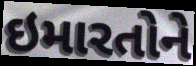
ઇમારતોને